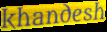
khandesh